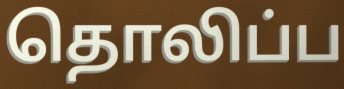
தொலிப்ப